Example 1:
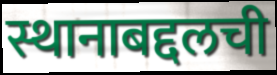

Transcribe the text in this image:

स्थानाबद्दलची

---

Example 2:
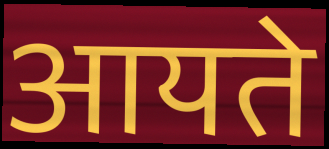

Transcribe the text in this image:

आयते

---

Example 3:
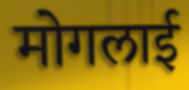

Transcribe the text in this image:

मोगलाई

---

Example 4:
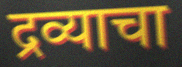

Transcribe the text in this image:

द्रव्याचा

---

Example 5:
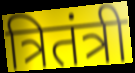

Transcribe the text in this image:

त्रितंत्री